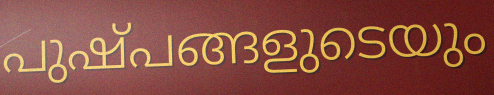
പുഷ്പങ്ങളുടെയും